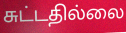
சுட்டதில்லை